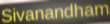
Sivanandham